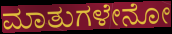
ಮಾತುಗಳೇನೋ